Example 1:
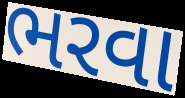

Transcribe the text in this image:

ભરવા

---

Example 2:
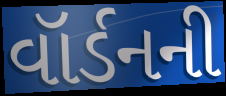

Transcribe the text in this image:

વૉર્ડનની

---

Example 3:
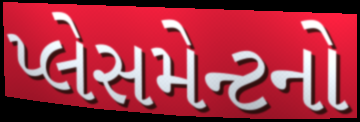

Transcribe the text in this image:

પ્લેસમેન્ટનો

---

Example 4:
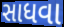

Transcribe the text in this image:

સાધવા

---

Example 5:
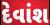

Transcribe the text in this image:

દેવાંશ